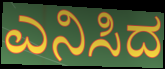
ಎನಿಸಿದ